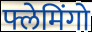
फ्लेमिंगो